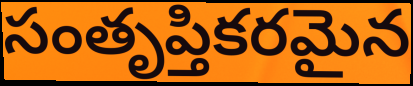
సంతృప్తికరమైన